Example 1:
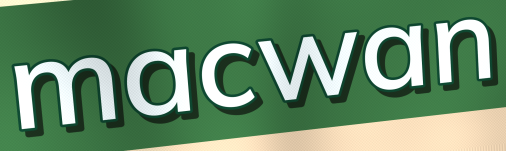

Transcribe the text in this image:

macwan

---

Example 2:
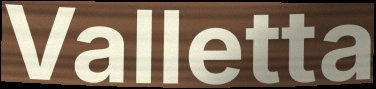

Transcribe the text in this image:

Valletta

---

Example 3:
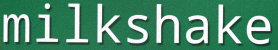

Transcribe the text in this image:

milkshake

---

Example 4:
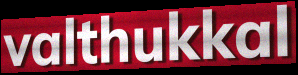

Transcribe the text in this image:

valthukkal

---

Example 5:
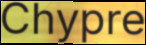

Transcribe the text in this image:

Chypre